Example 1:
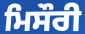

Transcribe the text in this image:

ਮਿਸੌਰੀ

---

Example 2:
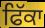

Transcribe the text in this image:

ਫਿੱਕਾ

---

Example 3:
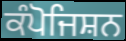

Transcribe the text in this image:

ਕੰਪੋਜਿਸ਼ਨ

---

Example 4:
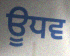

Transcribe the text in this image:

ਊਧਵ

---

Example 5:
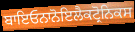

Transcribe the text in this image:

ਬਾਇਓਨਾਨੋਇਲੈਕਟ੍ਰੋਨਿਕਸ